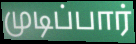
முடிப்பார்